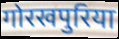
गोरखपुरिया